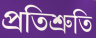
প্রতিশ্রুতি